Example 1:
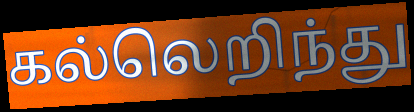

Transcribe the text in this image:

கல்லெறிந்து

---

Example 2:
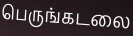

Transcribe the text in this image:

பெருங்கடலை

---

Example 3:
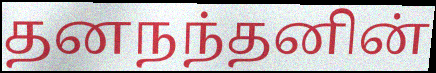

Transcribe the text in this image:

தனநந்தனின்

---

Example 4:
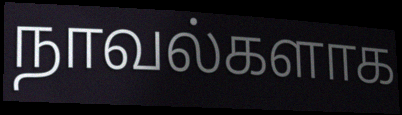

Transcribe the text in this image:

நாவல்களாக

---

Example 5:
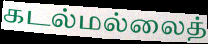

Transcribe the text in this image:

கடல்மல்லைத்